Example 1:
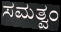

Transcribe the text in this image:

ಸಮತ್ವಂ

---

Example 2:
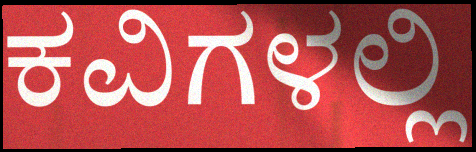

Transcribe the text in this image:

ಕವಿಗಳಲ್ಲಿ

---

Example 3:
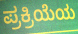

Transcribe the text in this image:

ಪ್ರಕ್ರಿಯೆಯ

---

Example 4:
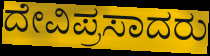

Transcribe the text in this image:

ದೇವಿಪ್ರಸಾದರು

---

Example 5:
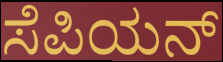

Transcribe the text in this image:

ಸೆಪಿಯನ್